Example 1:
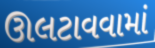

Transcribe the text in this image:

ઊલટાવવામાં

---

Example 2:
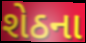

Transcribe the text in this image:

શેઠના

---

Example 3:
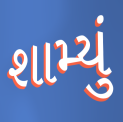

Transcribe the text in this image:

શામ્યું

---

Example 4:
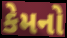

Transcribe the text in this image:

કેમનો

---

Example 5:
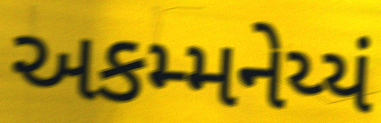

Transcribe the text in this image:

અકમ્મનેય્યં